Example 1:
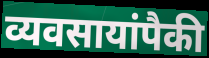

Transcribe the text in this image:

व्यवसायांपैकी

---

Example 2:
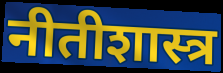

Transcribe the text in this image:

नीतीशास्त्र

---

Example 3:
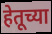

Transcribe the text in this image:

हेतूच्या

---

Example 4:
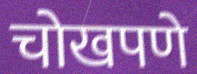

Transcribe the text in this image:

चोखपणे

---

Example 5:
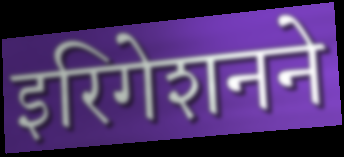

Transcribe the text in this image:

इरिगेशनने